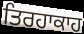
ਤਿਰਹਾਕਾਹ